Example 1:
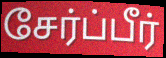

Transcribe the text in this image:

சேர்ப்பீர்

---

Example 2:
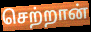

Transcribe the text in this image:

செற்றான்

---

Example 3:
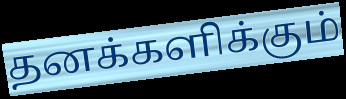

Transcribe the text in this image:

தனக்களிக்கும்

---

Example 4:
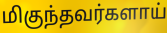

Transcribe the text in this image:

மிகுந்தவர்களாய்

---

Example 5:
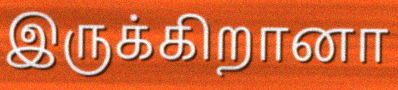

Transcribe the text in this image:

இருக்கிறானா